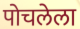
पोचलेला